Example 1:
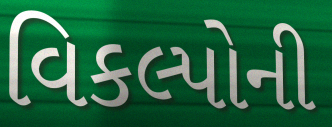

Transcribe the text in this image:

વિકલ્પોની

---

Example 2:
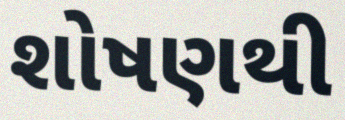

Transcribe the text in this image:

શોષણથી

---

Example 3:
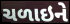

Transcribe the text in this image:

ચળાઇને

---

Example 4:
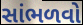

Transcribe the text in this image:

સાંભળવો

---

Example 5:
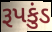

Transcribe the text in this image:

રૂપકુંડ